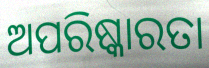
ଅପରିଷ୍କାରତା